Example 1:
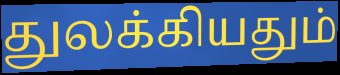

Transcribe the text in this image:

துலக்கியதும்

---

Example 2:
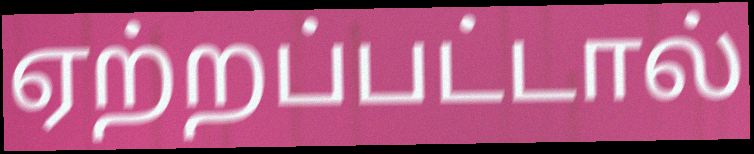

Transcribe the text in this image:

ஏற்றப்பட்டால்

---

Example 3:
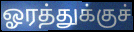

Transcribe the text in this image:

ஓரத்துக்குச்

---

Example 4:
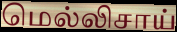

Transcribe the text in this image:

மெல்லிசாய்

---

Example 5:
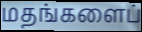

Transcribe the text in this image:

மதங்களைப்